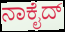
ನಾಕೈದ್